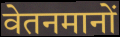
वेतनमानों